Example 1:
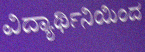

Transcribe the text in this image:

ವಿದ್ಯಾರ್ಥಿನಿಯಿಂದ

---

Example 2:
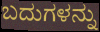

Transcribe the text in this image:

ಬದುಗಳನ್ನು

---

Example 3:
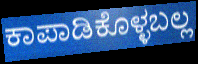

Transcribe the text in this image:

ಕಾಪಾಡಿಕೊಳ್ಳಬಲ್ಲ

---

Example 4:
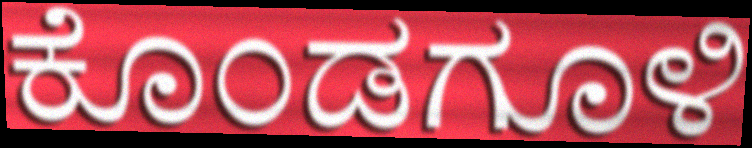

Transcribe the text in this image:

ಕೊಂಡಗೂಳಿ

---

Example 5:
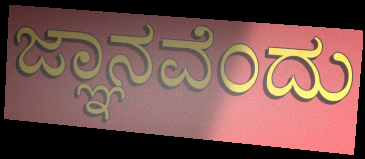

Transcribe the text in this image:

ಜ್ಞಾನವೆಂದು